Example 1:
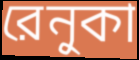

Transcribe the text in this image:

রেনুকা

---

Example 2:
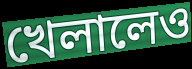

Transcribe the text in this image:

খেলালেও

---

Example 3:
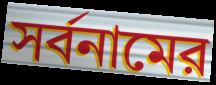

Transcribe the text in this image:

সর্বনামের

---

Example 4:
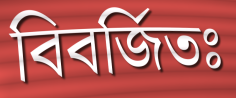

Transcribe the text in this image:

বিবর্জিতঃ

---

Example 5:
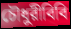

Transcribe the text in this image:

চৌধুরীবিবি